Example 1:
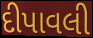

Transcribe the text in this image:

દીપાવલી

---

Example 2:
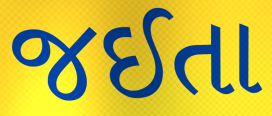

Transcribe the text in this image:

જઈતા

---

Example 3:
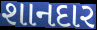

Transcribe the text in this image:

શાનદાર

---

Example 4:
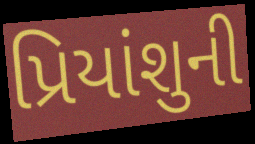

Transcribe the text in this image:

પ્રિયાંશુની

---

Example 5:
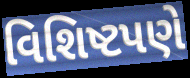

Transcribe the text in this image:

વિશિષ્ટપણે